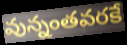
వున్నంతవరకే